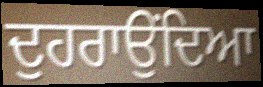
ਦੁਹਰਾਉਂਦਿਆ